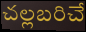
చల్లబరిచే